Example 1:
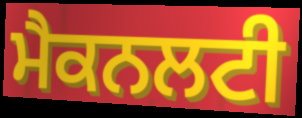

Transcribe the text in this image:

ਮੈਕਨਲਟੀ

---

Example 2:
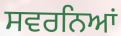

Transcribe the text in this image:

ਸਵਰਨਿਆਂ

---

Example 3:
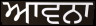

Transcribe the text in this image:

ਆਵਨਾ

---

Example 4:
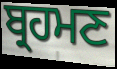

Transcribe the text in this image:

ਬ੍ਰਹਮਣ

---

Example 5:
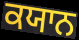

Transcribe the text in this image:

ਕਯਾਨ